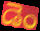
డెం